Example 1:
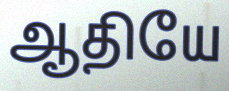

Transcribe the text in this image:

ஆதியே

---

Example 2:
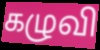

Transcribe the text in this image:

கழுவி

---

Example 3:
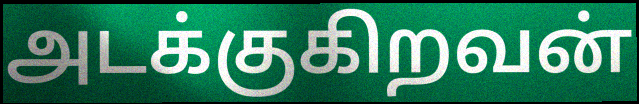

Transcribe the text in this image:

அடக்குகிறவன்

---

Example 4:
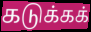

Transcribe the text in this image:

கடுக்கக்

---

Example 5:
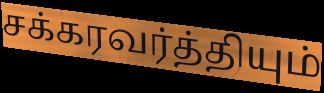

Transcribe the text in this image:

சக்கரவர்த்தியும்